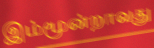
இம்மூன்றாவது